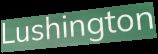
Lushington